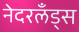
नेदरलँड्स